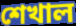
শেখাল